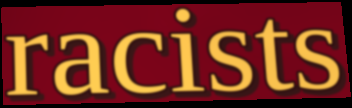
racists